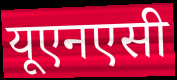
यूएनएसी